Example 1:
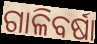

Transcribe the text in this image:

ଗାଳିବର୍ଷା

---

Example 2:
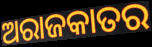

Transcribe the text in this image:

ଅରାଜକାତର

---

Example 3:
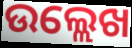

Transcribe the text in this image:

ଉଲ୍ଲେଖ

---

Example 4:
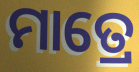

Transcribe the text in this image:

ମାତ୍ରେ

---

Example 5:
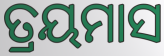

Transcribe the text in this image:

ତ୍ରୟମାସ